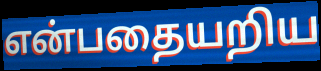
என்பதையறிய